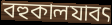
বহুকালযাবৎ